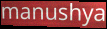
manushya